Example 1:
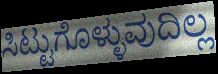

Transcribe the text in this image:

ಸಿಟ್ಟುಗೊಳ್ಳುವುದಿಲ್ಲ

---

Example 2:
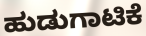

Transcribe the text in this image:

ಹುಡುಗಾಟಿಕೆ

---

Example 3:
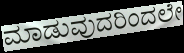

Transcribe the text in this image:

ಮಾಡುವುದರಿಂದಲೇ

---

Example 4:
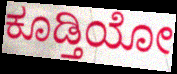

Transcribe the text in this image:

ಕೂಡ್ತಿಯೋ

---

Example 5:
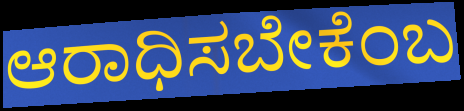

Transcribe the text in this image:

ಆರಾಧಿಸಬೇಕೆಂಬ